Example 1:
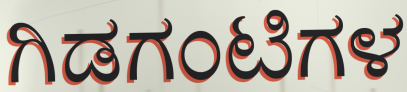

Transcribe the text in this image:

ಗಿಡಗಂಟಿಗಳ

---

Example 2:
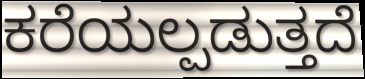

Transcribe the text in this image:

ಕರೆಯಲ್ಪಡುತ್ತದೆ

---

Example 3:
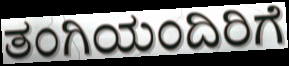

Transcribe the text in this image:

ತಂಗಿಯಂದಿರಿಗೆ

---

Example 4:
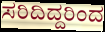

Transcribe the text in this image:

ಸರಿದಿದ್ದರಿಂದ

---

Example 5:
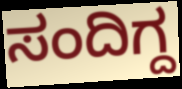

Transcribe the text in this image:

ಸಂದಿಗ್ದ